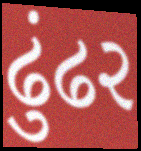
ઢુંઢર